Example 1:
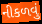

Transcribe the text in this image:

નીકળવું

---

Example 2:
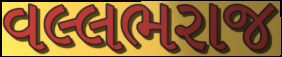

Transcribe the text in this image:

વલ્લભરાજ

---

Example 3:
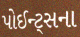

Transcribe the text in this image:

પોઈન્ટ્સના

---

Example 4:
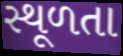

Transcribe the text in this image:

સ્થૂળતા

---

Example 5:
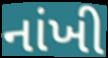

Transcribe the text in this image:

નાંખી